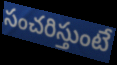
సంచరిస్తుంటే